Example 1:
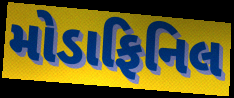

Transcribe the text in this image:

મોડાફિનિલ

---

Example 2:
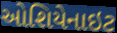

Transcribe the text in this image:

ઓશિયેનાઇટ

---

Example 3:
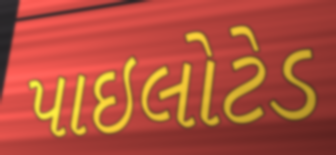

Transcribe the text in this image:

પાઇલોટેડ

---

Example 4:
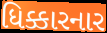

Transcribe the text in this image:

ધિક્કારનાર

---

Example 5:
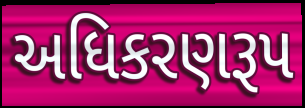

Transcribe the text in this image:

અધિકરણરૂપ